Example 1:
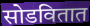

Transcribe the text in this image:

सोडवितात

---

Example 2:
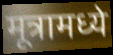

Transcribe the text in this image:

मूत्रामध्ये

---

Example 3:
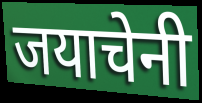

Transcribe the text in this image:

जयाचेनी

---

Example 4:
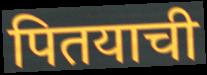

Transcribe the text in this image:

पितयाची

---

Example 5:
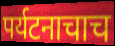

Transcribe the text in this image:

पर्यटनाचाच